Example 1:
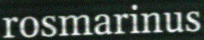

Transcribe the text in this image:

rosmarinus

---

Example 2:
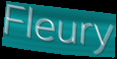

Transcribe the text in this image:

Fleury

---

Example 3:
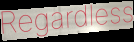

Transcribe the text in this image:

Regardless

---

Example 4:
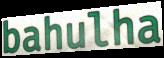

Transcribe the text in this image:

bahulha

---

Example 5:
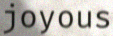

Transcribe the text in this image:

joyous